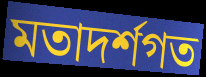
মতাদর্শগত